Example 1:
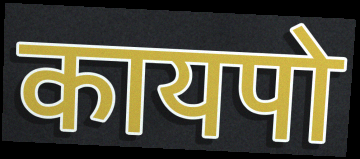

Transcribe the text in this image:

कायपो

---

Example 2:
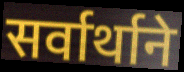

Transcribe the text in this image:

सर्वार्थाने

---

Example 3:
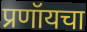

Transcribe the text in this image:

प्रणॉयचा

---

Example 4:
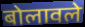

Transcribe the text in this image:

बोलावले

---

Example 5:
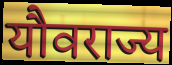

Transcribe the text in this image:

यौवराज्य